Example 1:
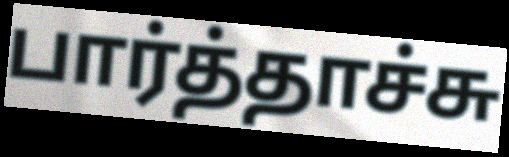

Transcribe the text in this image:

பார்த்தாச்சு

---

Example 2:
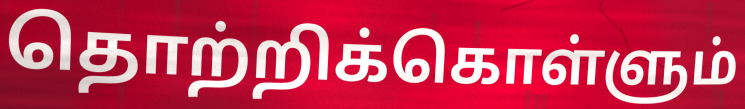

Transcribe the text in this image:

தொற்றிக்கொள்ளும்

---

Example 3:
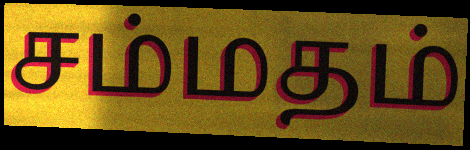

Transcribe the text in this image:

சம்மதம்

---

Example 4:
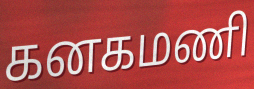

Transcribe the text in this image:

கனகமணி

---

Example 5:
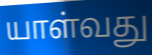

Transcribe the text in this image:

யாள்வது